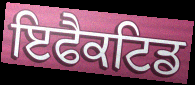
ਇਫੈਕਟਿਡ